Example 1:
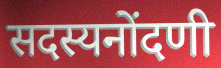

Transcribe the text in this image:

सदस्यनोंदणी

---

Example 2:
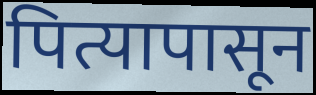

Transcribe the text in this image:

पित्यापासून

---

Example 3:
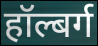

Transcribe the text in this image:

हॉल्बर्ग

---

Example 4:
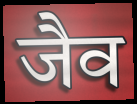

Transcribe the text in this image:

जैव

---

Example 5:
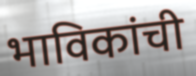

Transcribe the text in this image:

भाविकांची